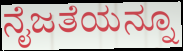
ನೈಜತೆಯನ್ನೂ